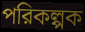
পরিকল্পক